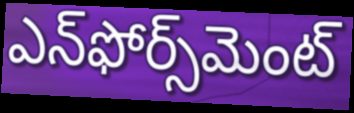
ఎన్‌ఫోర్స్‌మెంట్